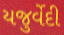
યજુર્વેદી